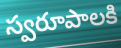
స్వరూపాలకి